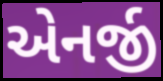
એનર્જી